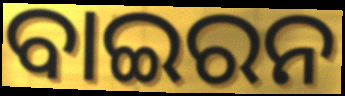
ବାଇରନ